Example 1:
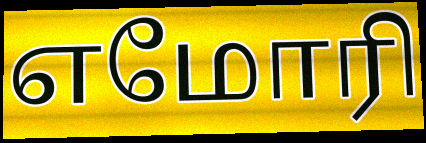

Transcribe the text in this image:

எமோரி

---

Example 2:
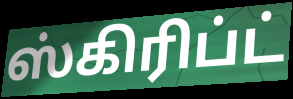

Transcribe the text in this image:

ஸ்கிரிப்ட்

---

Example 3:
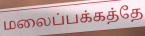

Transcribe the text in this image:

மலைப்பக்கத்தே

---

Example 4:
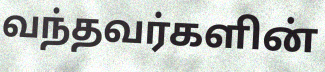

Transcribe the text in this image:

வந்தவர்களின்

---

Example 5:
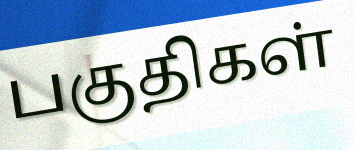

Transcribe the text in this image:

பகுதிகள்